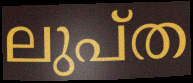
ലുപ്ത